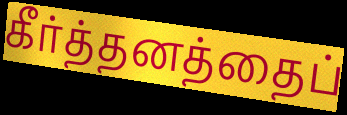
கீர்த்தனத்தைப்